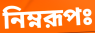
নিম্নরূপঃ